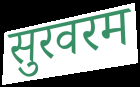
सुरवरम